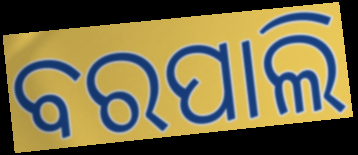
ବରପାଲି